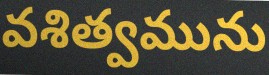
వశిత్వమును